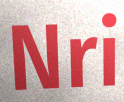
Nri